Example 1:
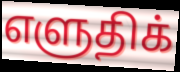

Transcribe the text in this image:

எளுதிக்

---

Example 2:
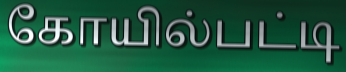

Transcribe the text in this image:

கோயில்பட்டி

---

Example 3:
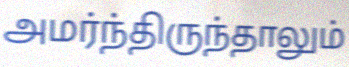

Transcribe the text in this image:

அமர்ந்திருந்தாலும்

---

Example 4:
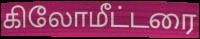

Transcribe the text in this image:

கிலோமீட்டரை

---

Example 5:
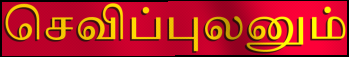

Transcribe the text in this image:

செவிப்புலனும்